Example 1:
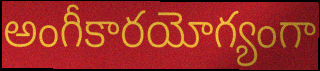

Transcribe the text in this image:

అంగీకారయోగ్యంగా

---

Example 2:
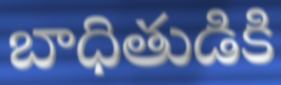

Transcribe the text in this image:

బాధితుడికి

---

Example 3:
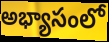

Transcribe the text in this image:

అభ్యాసంలో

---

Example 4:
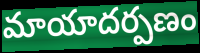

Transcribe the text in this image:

మాయాదర్పణం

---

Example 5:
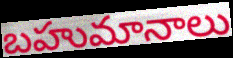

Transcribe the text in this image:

బహుమానాలు